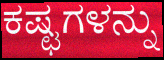
ಕಷ್ಟಗಳನ್ನು